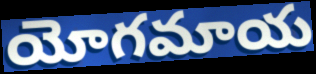
యోగమాయ